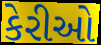
કેરીઓ